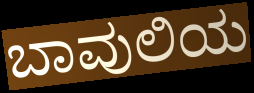
ಬಾವುಲಿಯ